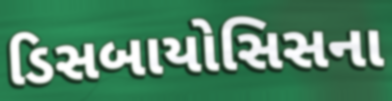
ડિસબાયોસિસના